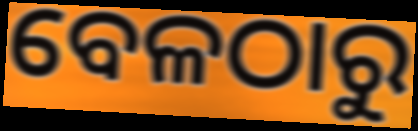
ବେଳଠାରୁ